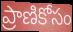
ప్రాణికోసం